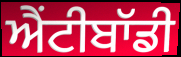
ਐਂਟੀਬਾੱਡੀ